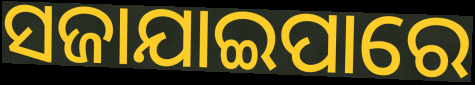
ସଜାଯାଇପାରେ